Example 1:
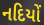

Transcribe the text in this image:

નદિયોં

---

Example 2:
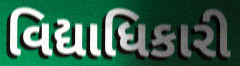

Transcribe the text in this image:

વિદ્યાધિકારી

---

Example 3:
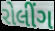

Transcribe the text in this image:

રોલીંગ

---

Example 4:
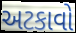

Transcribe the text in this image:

અટકાવો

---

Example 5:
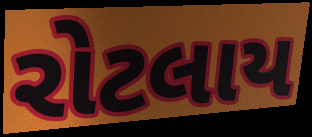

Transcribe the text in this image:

રોટલાય